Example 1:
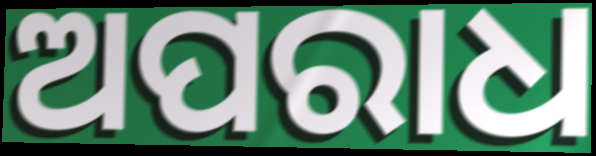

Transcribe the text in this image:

ଅପରାଧ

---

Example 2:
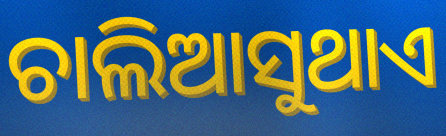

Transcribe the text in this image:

ଚାଲିଆସୁଥାଏ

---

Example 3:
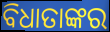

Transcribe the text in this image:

ବିଧାତାଙ୍କର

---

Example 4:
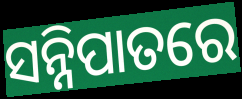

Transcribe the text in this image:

ସନ୍ନିପାତରେ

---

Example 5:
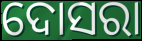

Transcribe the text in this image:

ଦୋସରା